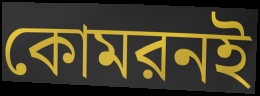
কোমরনই